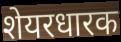
शेयरधारक